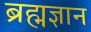
ब्रह्मज्ञान